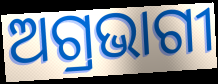
ଅଗ୍ରଭାଗୀ